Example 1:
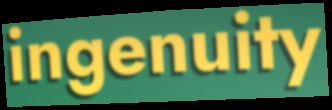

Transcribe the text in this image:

ingenuity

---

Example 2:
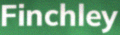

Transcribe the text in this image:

Finchley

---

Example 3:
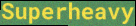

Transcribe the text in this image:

Superheavy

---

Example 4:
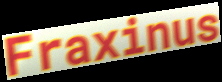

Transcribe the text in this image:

Fraxinus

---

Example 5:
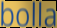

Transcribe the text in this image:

bolla